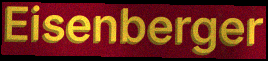
Eisenberger